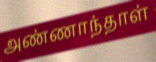
அண்ணாந்தாள்